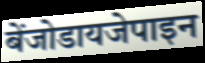
बेंजोडायजेपाइन